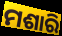
ମଶାରି